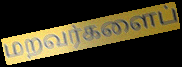
மறவர்களைப்